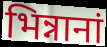
भिन्नानां